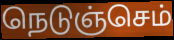
நெடுஞ்செம்